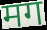
मग